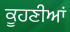
ਕੂਹਣੀਆਂ